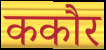
ककौर